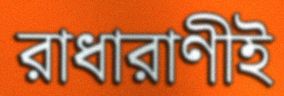
রাধারাণীই